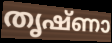
തൃഷ്ണാ